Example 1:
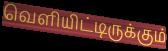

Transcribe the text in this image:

வெளியிட்டிருக்கும்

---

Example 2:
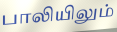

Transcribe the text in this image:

பாலியிலும்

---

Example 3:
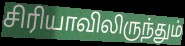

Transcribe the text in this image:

சிரியாவிலிருந்தும்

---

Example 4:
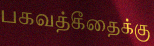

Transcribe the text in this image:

பகவத்கீதைக்கு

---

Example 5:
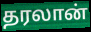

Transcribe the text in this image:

தரலான்